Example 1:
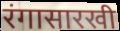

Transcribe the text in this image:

रंगासारखी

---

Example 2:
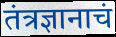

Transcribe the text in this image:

तंत्रज्ञानाचं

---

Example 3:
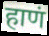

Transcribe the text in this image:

हाणं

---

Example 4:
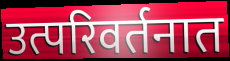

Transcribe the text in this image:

उत्परिवर्तनात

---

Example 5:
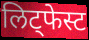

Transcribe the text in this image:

लिट्फेस्ट